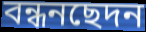
বন্ধনছেদন